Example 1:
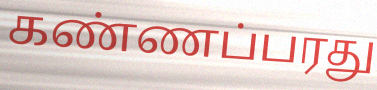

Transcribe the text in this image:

கண்ணப்பரது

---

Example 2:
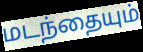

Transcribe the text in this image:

மடந்தையும்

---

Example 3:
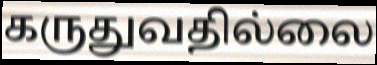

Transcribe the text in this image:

கருதுவதில்லை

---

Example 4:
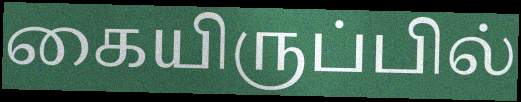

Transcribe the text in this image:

கையிருப்பில்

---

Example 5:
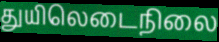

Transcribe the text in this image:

துயிலெடைநிலை